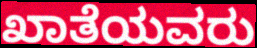
ಖಾತೆಯವರು